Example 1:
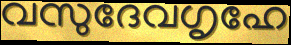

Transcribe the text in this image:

വസുദേവഗൃഹേ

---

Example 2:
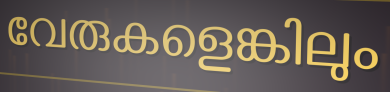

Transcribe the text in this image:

വേരുകളെങ്കിലും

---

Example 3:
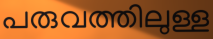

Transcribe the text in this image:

പരുവത്തിലുള്ള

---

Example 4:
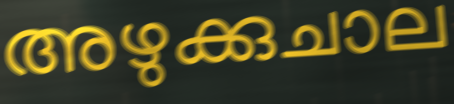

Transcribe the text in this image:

അഴുക്കുചാല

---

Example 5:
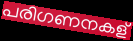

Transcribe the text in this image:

പരിഗണനകള്